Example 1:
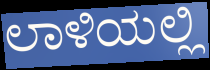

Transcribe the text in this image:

ಲಾಳಿಯಲ್ಲಿ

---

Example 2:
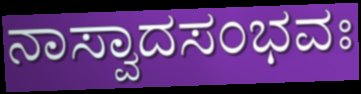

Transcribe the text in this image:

ನಾಸ್ವಾದಸಂಭವಃ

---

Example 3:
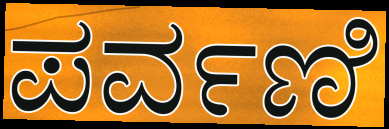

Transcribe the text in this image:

ಪರ್ವಣಿ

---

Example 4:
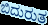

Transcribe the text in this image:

ಬಿದುರುತ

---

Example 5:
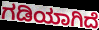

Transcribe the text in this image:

ಗಡಿಯಾಗಿದೆ